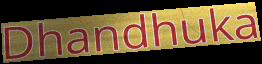
Dhandhuka